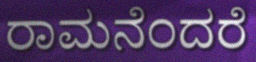
ರಾಮನೆಂದರೆ